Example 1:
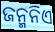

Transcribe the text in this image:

ଜନ୍ମନିଏ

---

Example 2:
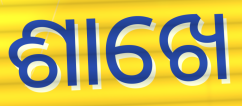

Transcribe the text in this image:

ଶାଖେ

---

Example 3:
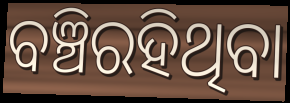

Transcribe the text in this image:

ବଞ୍ଚିରହିଥିବା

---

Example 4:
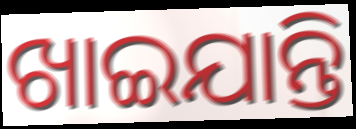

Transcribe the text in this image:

ଖାଇଯାନ୍ତି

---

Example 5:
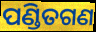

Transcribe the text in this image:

ପଣ୍ଡିତଗଣ